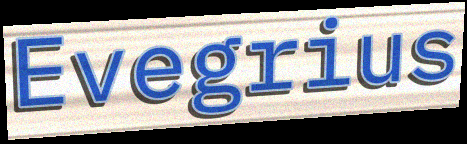
Evegrius